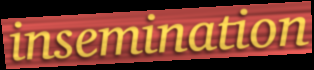
insemination